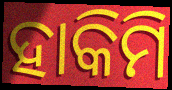
ହାକିମି